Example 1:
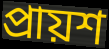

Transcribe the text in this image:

প্রায়শ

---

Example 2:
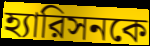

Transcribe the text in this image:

হ্যারিসনকে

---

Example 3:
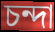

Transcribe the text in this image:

চন্দা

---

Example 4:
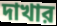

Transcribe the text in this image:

দাখার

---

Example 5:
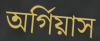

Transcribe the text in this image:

অর্গিয়াস